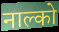
नाल्को